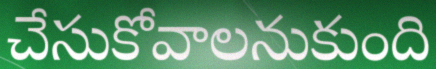
చేసుకోవాలనుకుంది